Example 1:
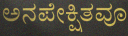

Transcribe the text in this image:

ಅನಪೇಕ್ಷಿತವೂ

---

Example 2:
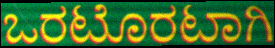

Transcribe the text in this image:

ಒರಟೊರಟಾಗಿ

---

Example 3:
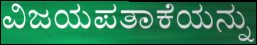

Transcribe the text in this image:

ವಿಜಯಪತಾಕೆಯನ್ನು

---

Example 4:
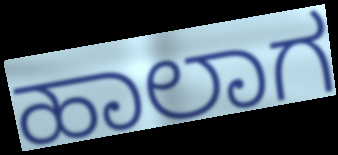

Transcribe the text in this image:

ಹಾಲಾಗ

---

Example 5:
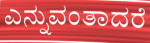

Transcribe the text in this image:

ಎನ್ನುವಂತಾದರೆ